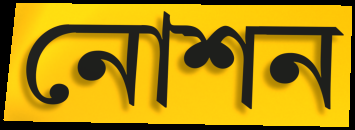
নোশন